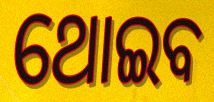
ଥୋଇବ